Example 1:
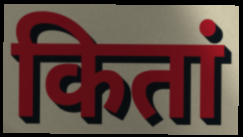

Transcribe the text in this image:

कितां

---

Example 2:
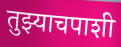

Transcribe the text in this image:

तुझ्याचपाशी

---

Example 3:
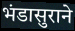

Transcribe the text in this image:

भंडासुराने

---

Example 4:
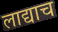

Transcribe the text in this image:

लाद्याच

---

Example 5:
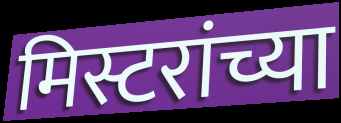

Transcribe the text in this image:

मिस्टरांच्या